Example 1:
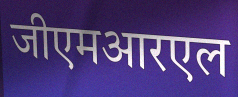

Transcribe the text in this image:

जीएमआरएल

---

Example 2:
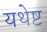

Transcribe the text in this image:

यथेष्ट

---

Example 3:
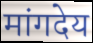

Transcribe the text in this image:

मांगदेय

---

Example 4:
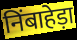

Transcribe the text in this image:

निंबाहेड़ा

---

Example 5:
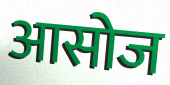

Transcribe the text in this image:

आसोज